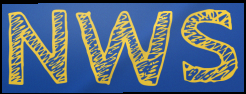
NWS